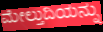
ಮೇಲ್ತುದಿಯನ್ನು